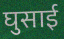
घुसाई